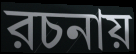
রচনায়